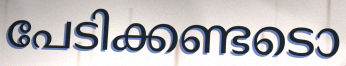
പേടിക്കണ്ടടൊ